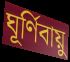
ঘূর্ণিবায়ু